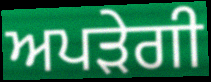
ਅਪੜੇਗੀ